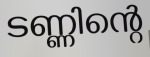
ടണ്ണിന്റെ